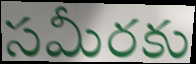
సమీరకు